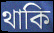
থাকি